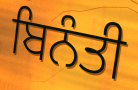
ਬਿਨੰਤੀ